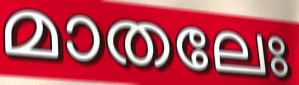
മാതലേഃ